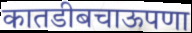
कातडीबचाऊपणा